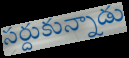
సర్దుకున్నాడు